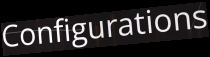
Configurations